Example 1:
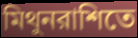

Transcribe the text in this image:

মিথুনরাশিতে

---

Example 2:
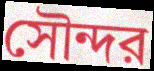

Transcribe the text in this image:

সৌন্দর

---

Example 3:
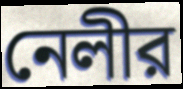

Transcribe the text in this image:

নেলীর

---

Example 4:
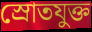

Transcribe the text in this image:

স্রোতযুক্ত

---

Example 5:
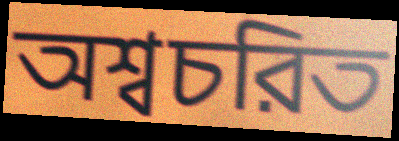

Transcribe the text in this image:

অশ্বচরিত